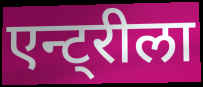
एन्ट्रीला